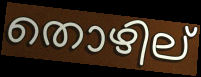
തൊഴില്